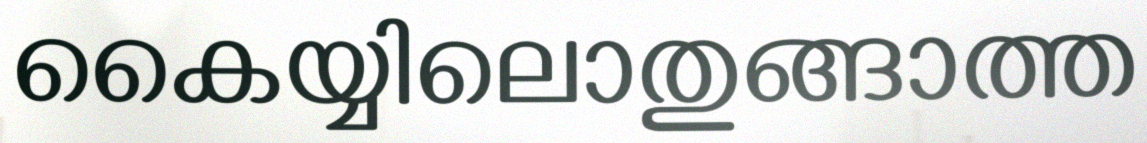
കൈയ്യിലൊതുങ്ങാത്ത